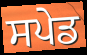
ਸਪੇਡ